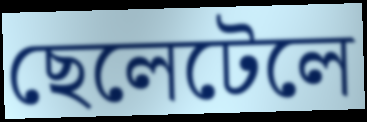
ছেলেটেলে